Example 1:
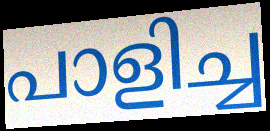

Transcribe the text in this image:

പാളിച്ച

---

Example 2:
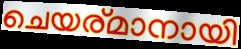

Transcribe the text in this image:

ചെയര്മാനായി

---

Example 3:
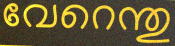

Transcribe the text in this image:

വേറെന്തു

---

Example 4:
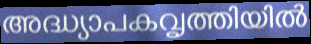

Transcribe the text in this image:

അദ്ധ്യാപകവൃത്തിയിൽ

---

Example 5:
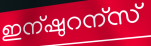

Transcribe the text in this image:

ഇന്ഷുറന്സ്